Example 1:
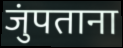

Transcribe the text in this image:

जुंपताना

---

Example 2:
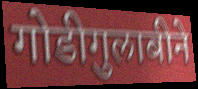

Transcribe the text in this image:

गोडीगुलाबीने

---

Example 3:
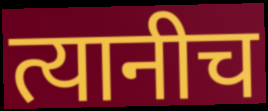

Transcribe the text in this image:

त्यानीच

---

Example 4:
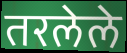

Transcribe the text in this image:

तरलेले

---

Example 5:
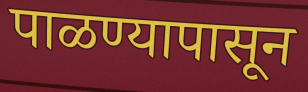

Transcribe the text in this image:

पाळण्यापासून